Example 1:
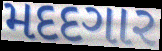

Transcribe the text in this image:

મદદગાર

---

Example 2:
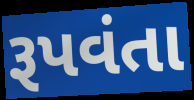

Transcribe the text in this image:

રૂપવંતા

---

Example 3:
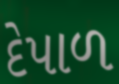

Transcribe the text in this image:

દેપાળ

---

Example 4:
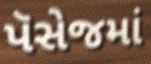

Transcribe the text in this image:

પૅસેજમાં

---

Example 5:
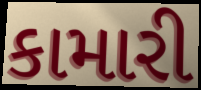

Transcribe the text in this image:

કામારી